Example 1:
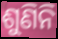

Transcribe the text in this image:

ଶୁଣିନି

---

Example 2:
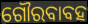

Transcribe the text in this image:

ଗୌରବାବହ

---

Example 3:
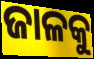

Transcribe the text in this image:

ଜାଳକୁ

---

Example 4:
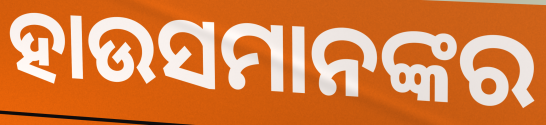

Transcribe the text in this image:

ହାଉସମାନଙ୍କର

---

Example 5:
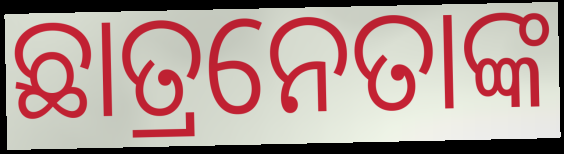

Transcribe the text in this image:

ଛାତ୍ରନେତାଙ୍କ